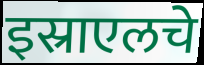
इस्राएलचे